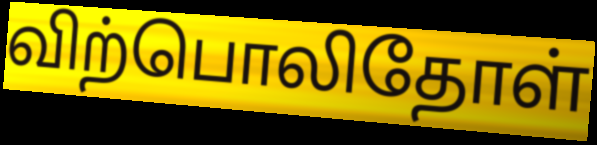
விற்பொலிதோள்